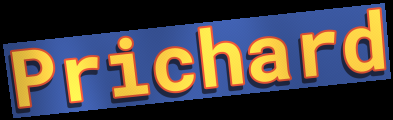
Prichard